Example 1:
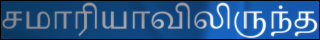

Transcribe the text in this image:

சமாரியாவிலிருந்த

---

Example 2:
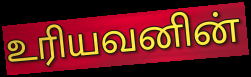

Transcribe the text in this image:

உரியவனின்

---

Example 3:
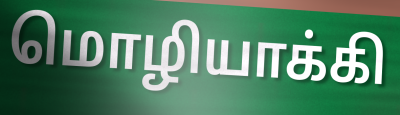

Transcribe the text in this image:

மொழியாக்கி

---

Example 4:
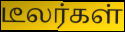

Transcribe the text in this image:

டீலர்கள்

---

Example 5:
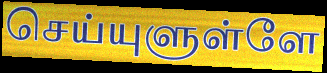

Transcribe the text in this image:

செய்யுளுள்ளே